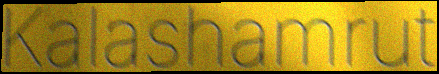
Kalashamrut